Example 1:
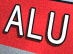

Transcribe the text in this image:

ALU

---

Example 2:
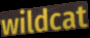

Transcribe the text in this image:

wildcat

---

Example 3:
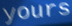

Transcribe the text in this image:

yours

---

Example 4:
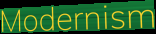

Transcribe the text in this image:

Modernism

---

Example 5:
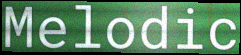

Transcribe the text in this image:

Melodic